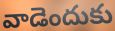
వాడెందుకు